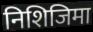
निशिजिमा